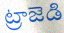
ట్రాజెడి